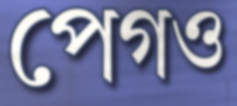
পেগও